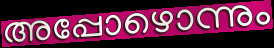
അപ്പോഴൊന്നും